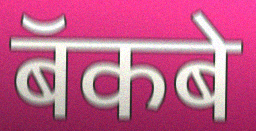
बॅकबे